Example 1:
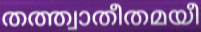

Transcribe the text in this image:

തത്ത്വാതീതമയീ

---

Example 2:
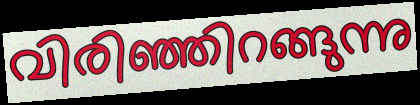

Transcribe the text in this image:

വിരിഞ്ഞിറങ്ങുന്നു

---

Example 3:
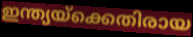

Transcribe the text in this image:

ഇന്ത്യയ്ക്കെതിരായ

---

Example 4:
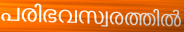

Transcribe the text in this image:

പരിഭവസ്വരത്തിൽ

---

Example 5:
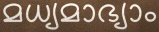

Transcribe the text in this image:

മധ്യമാഭ്യാം